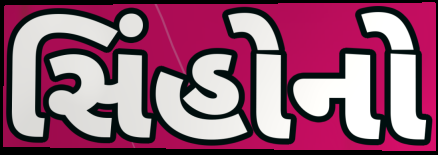
સિંહોનો